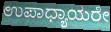
ಉಪಾಧ್ಯಾಯರೇ